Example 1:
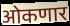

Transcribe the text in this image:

ओकणार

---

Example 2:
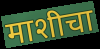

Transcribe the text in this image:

माशीचा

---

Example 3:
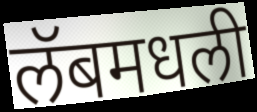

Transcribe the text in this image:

लॅबमधली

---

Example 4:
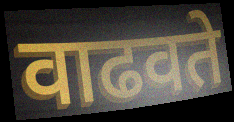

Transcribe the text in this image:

वाढवते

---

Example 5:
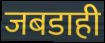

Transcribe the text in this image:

जबडाही